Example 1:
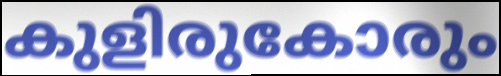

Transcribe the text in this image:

കുളിരുകോരും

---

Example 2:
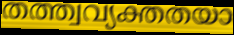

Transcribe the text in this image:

തത്ത്വവ്യക്തതയാ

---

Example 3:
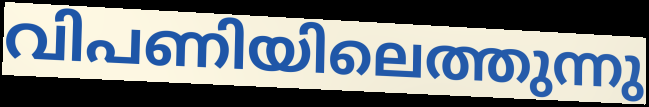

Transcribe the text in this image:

വിപണിയിലെത്തുന്നു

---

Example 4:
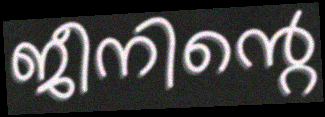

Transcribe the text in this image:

ജീനിന്റെ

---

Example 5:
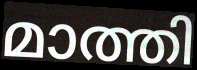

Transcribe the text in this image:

മാത്തി